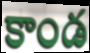
కాండ